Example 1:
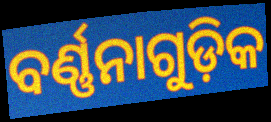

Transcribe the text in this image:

ବର୍ଣ୍ଣନାଗୁଡ଼ିକ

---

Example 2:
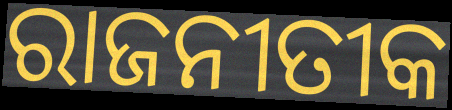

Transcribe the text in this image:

ରାଜନୀତୀକ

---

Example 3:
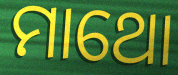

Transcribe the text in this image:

ମାଥୋ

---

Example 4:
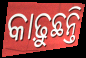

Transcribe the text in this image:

କାଢ଼ୁଛନ୍ତି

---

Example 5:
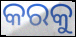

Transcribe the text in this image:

କରକୁ